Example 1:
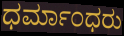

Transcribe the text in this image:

ಧರ್ಮಾಂಧರು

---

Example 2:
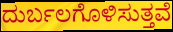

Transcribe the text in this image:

ದುರ್ಬಲಗೊಳಿಸುತ್ತವೆ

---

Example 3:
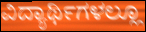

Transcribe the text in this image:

ವಿದ್ಯಾರ್ಥಿಗಳಲ್ಲೂ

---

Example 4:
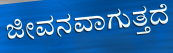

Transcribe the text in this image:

ಜೀವನವಾಗುತ್ತದೆ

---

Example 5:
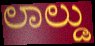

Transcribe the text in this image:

ಲಾಲ್ಡು